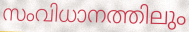
സംവിധാനത്തിലും